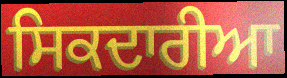
ਸਿਕਦਾਰੀਆ